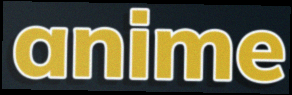
anime